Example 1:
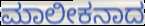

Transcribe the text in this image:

ಮಾಲೀಕನಾದ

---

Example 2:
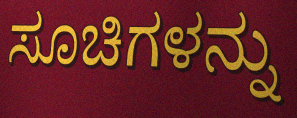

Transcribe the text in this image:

ಸೂಚಿಗಳನ್ನು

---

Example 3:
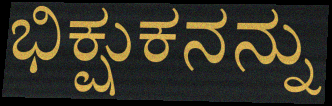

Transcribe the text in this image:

ಭಿಕ್ಷುಕನನ್ನು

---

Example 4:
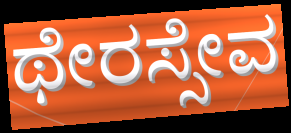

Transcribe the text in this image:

ಥೇರಸ್ಸೇವ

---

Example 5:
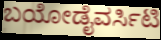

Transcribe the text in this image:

ಬಯೋಡೈವರ್ಸಿಟಿ